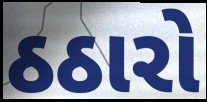
ઠઠારો